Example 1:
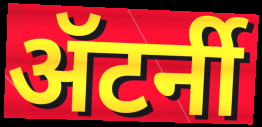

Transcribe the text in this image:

ॲटर्नी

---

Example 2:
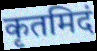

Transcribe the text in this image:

कृतमिदं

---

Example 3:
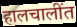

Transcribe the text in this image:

हालचालींत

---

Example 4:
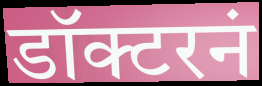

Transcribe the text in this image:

डॉक्टरनं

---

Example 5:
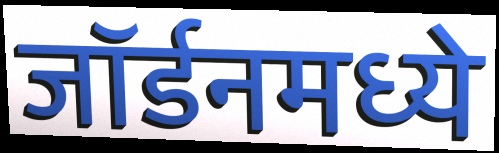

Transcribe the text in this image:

जॉर्डनमध्ये